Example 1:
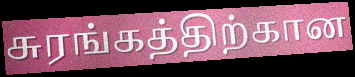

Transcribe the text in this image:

சுரங்கத்திற்கான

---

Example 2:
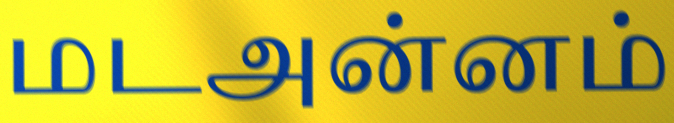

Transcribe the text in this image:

மடஅன்னம்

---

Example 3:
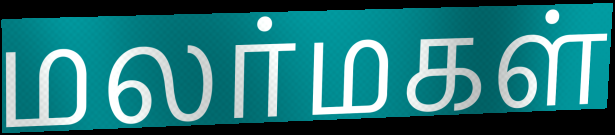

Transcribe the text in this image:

மலர்மகள்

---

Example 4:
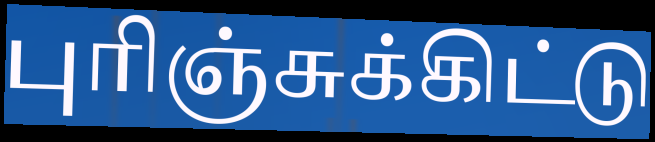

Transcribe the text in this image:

புரிஞ்சுக்கிட்டு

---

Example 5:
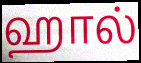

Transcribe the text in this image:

ஹால்